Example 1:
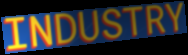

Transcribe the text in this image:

INDUSTRY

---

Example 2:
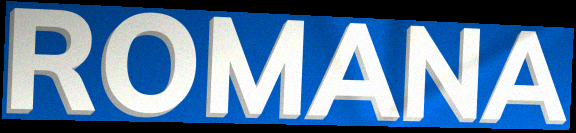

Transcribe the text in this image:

ROMANA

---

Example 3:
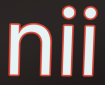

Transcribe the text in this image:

nii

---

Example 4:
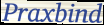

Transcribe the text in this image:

Praxbind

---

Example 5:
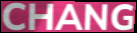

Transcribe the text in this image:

CHANG